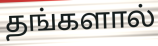
தங்களால்